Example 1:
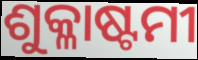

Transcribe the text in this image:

ଶୁକ୍ଳାଷ୍ଟମୀ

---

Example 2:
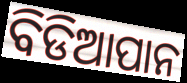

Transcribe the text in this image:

ବିଡିଆପାନ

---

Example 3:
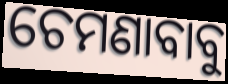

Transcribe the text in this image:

ଚେମଣାବାବୁ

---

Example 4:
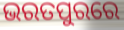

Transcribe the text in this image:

ଭରତପୁରରେ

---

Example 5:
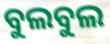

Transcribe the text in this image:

ବୁଲବୁଲ